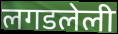
लगडलेली